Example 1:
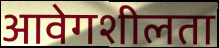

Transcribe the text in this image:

आवेगशीलता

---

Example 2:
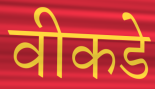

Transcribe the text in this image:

वीकडे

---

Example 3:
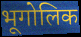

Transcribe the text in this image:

भूगोलिक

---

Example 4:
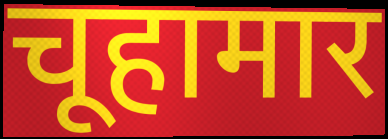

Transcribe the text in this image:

चूहामार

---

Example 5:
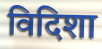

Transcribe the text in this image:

विदिशा